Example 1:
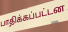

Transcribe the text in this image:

பாதிக்கப்பட்டன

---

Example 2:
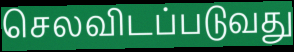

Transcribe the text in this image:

செலவிடப்படுவது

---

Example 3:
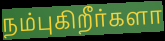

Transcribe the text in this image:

நம்புகிறீர்களா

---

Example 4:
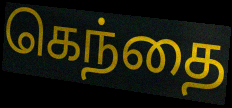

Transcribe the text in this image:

கெந்தை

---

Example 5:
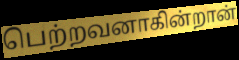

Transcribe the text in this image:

பெற்றவனாகின்றான்